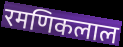
रमणिकलाल